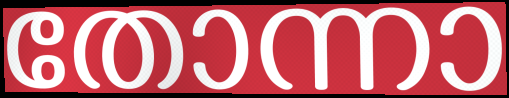
തോന്നാ